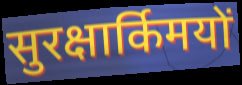
सुरक्षार्किमयों